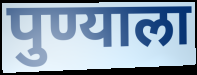
पुण्याला